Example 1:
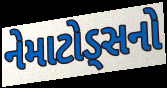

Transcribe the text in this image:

નેમાટોડ્સનો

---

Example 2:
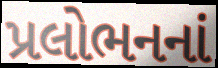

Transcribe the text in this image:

પ્રલોભનનાં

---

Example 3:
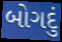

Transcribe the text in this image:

બોગદું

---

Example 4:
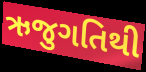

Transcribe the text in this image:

ઋજુગતિથી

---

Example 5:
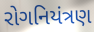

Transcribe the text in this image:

રોગનિયંત્રણ